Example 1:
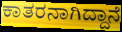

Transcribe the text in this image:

ಕಾತರನಾಗಿದ್ದಾನೆ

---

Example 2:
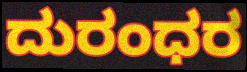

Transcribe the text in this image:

ದುರಂಧರ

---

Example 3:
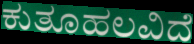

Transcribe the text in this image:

ಕುತೂಹಲವಿದೆ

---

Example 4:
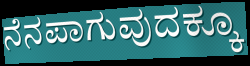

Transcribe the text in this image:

ನೆನಪಾಗುವುದಕ್ಕೂ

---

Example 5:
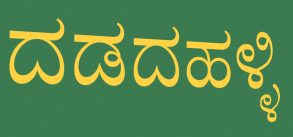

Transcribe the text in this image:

ದಡದಹಳ್ಳಿ